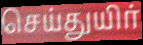
செய்துயிர்